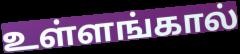
உள்ளங்கால்